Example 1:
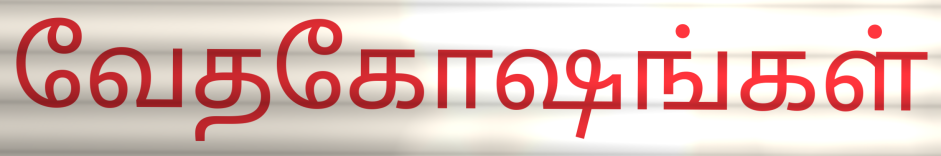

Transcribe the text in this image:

வேதகோஷங்கள்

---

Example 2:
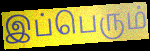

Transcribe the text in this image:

இப்பெரும்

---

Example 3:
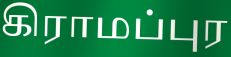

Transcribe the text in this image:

கிராமப்புர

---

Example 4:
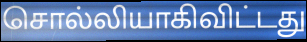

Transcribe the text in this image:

சொல்லியாகிவிட்டது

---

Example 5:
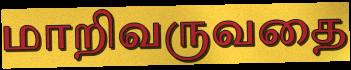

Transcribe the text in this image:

மாறிவருவதை